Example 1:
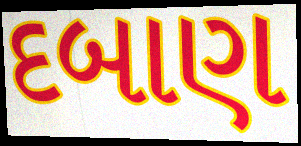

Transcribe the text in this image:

દબાણ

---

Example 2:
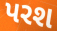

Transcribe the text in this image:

પરશ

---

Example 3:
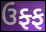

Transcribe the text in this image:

ઉફ્ફ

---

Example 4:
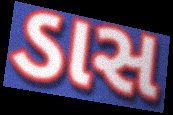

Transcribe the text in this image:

ડાસ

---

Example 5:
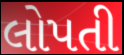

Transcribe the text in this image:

લોપતી